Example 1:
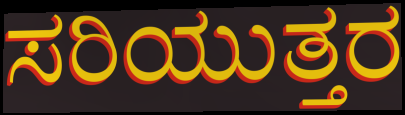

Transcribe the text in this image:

ಸರಿಯುತ್ತರ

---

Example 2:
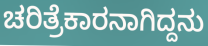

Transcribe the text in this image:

ಚರಿತ್ರೆಕಾರನಾಗಿದ್ದನು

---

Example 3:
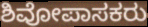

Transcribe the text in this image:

ಶಿವೋಪಾಸಕರು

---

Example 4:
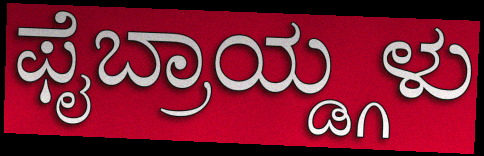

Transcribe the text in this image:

ಫೈಬ್ರಾಯ್ಡ್ಗಳು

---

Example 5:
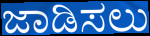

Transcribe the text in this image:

ಜಾಡಿಸಲು